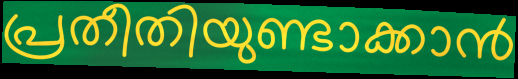
പ്രതീതിയുണ്ടാക്കാൻ